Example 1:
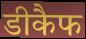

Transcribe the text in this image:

डीकैफ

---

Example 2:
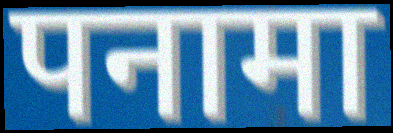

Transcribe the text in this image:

पनामा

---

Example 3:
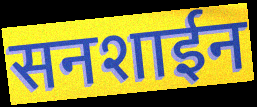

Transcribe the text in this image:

सनशाईन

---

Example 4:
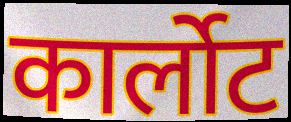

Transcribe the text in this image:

कार्लोट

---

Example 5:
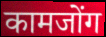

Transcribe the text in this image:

कामजोंग